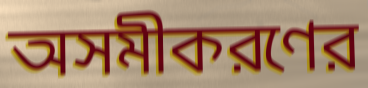
অসমীকরণের